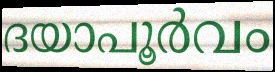
ദയാപൂർവം